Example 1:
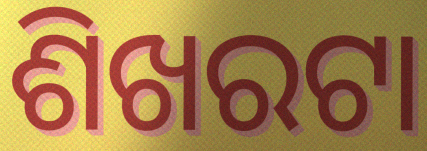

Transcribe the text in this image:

ଶିଖରଟା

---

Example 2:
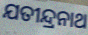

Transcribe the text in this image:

ଯତୀନ୍ଦ୍ରନାଥ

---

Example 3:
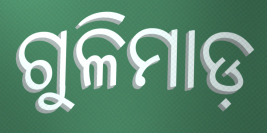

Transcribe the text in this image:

ଗୁଳିମାଡ଼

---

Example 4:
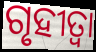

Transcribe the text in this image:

ଗୃହୀତ୍ଵା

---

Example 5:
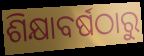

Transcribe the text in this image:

ଶିକ୍ଷାବର୍ଷଠାରୁ